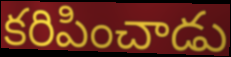
కరిపించాడు